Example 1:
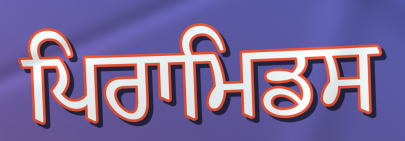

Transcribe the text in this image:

ਪਿਰਾਮਿਡਸ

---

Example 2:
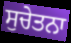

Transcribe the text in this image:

ਸੁਚੇਤਨਾ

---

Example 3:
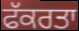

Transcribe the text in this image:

ਫੱਕਰਤਾ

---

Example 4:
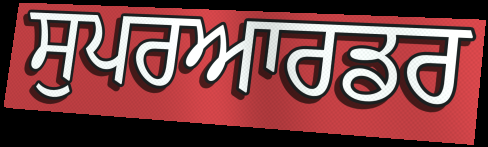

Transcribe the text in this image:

ਸੁਪਰਆਰਡਰ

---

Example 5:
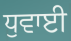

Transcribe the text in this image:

ਧੁਵਾਈ